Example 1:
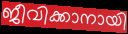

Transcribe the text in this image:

ജീവിക്കാനായി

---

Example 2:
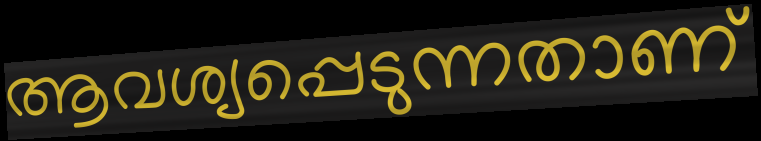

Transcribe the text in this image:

ആവശ്യപ്പെടുന്നതാണ്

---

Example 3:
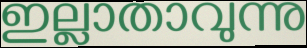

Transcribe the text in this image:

ഇല്ലാതാവുന്നു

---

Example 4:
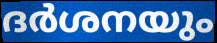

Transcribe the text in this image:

ദർശനയും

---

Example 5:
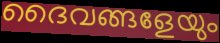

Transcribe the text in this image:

ദൈവങ്ങളേയും